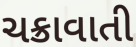
ચક્રાવાતી